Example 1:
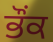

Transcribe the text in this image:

ਭੌਂਕ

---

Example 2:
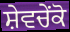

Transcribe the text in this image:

ਸ਼ੇਵਚੇਂਕੋ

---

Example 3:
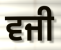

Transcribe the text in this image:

ਵਜੀ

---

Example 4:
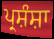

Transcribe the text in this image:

ਪ੍ਰਸ਼ੰਸ਼ਾ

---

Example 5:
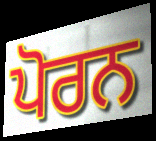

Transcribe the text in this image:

ਪੋਰਨ